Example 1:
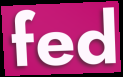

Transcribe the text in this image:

fed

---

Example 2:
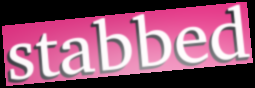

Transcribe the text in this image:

stabbed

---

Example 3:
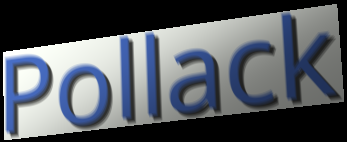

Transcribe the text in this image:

Pollack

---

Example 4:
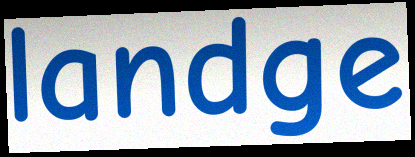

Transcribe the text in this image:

landge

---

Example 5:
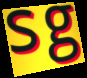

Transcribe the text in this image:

sg